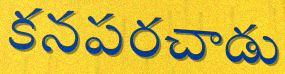
కనపరచాడు